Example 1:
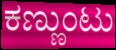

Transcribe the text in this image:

ಕಣ್ಣುಂಟು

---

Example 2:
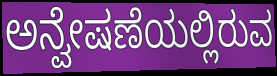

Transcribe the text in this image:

ಅನ್ವೇಷಣೆಯಲ್ಲಿರುವ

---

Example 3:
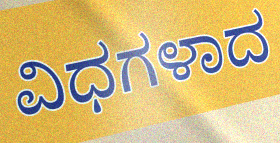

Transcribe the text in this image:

ವಿಧಗಳಾದ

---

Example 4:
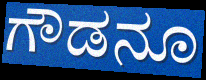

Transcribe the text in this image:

ಗೌಡನೂ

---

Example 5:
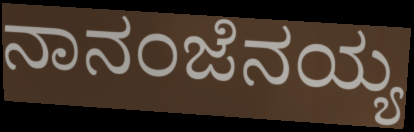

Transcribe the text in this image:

ನಾನಂಜೆನಯ್ಯ